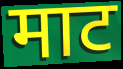
माट